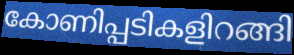
കോണിപ്പടികളിറങ്ങി